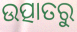
ଉତ୍ପାତରୁ